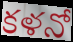
కళనో